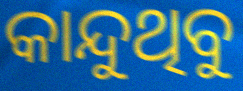
କାନ୍ଦୁଥିବୁ